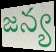
జన్య